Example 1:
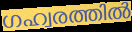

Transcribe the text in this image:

ഗഹ്വരത്തിൽ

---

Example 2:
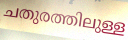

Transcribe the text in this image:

ചതുരത്തിലുള്ള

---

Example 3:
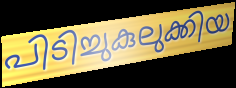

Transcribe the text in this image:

പിടിച്ചുകുലുക്കിയ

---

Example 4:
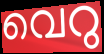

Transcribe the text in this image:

വെറു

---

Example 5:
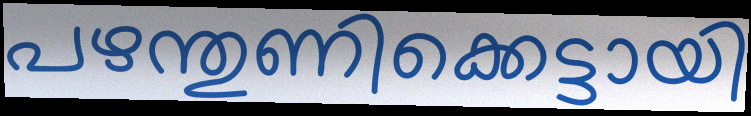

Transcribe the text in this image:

പഴന്തുണിക്കെട്ടായി